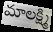
మాలక్ష్మి